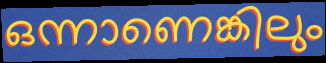
ഒന്നാണെങ്കിലും